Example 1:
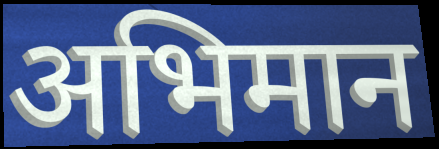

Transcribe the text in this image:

अभिमान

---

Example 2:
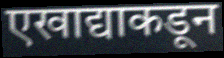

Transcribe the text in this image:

एखाद्याकडून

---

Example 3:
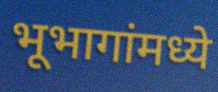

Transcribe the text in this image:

भूभागांमध्ये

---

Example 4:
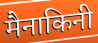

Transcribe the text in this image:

मैनाकिनी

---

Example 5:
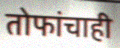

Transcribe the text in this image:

तोफांचाही